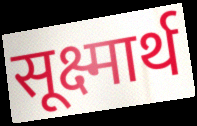
सूक्ष्मार्थ